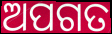
ଅପଗତ